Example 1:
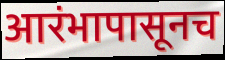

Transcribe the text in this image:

आरंभापासूनच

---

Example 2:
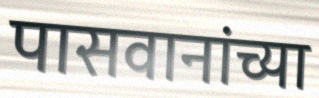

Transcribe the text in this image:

पासवानांच्या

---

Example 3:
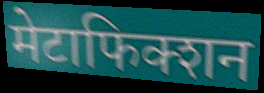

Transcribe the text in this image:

मेटाफिक्शन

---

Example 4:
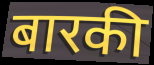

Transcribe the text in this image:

बारकी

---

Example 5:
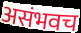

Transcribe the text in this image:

असंभवच